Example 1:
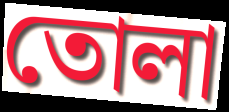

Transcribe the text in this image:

তোলা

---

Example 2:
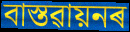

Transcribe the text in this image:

বাস্তৱায়নৰ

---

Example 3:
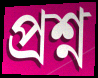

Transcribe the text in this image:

প্ৰশ্ন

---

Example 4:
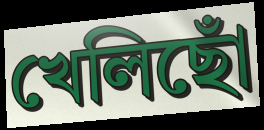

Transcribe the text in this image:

খেলিছোঁ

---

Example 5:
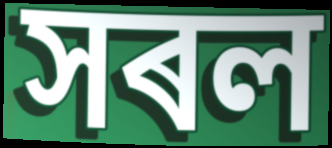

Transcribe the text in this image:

সৰল